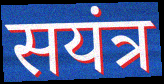
सयंत्र